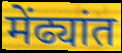
मेंढ्यांत